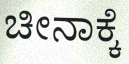
ಚೀನಾಕ್ಕೆ